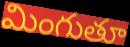
మింగుతూ